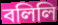
বলিলি